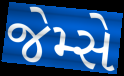
જેમ્સે